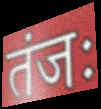
तंजः